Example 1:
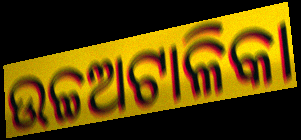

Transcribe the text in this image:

ଉଚ୍ଚଅଟାଳିକା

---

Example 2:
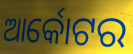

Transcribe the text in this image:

ଆର୍କୋଟର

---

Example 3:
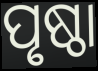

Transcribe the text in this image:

ପୃଷ୍ଠା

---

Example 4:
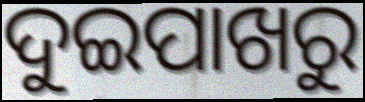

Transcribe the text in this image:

ଦୁଇପାଖରୁ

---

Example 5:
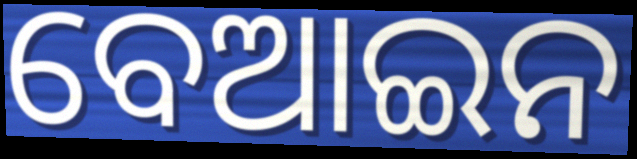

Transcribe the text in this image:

ବେଆଇନ